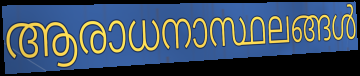
ആരാധനാസ്ഥലങ്ങൾ